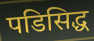
पडिसिद्ध